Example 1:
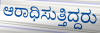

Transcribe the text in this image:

ಆರಾಧಿಸುತ್ತಿದ್ದರು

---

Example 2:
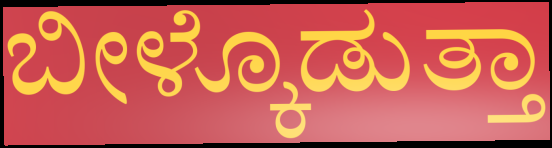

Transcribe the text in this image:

ಬೀಳ್ಕೊಡುತ್ತಾ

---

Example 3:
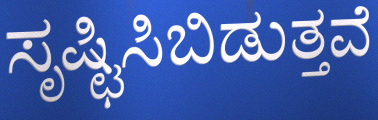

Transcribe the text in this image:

ಸೃಷ್ಟಿಸಿಬಿಡುತ್ತವೆ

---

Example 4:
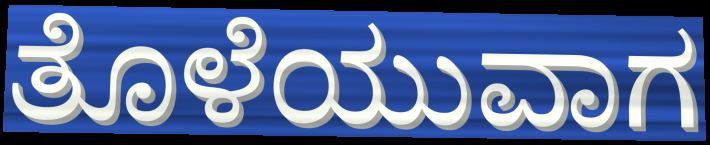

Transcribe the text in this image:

ತೊಳೆಯುವಾಗ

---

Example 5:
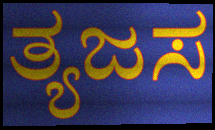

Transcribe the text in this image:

ತ್ಯಜಸ